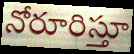
నోరూరిస్తూ